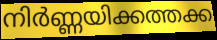
നിർണ്ണയിക്കത്തക്ക